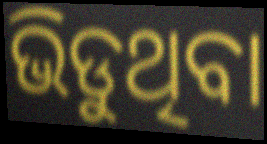
ଭିଡୁଥିବା